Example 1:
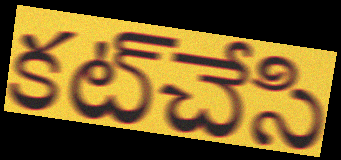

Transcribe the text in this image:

కట్‌చేసి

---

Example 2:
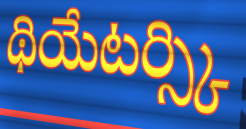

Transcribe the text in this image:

థియేటర్స్కి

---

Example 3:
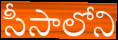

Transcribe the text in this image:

సీసాలోని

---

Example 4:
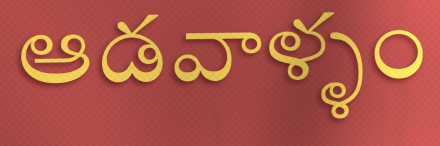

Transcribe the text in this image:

ఆడవాళ్ళం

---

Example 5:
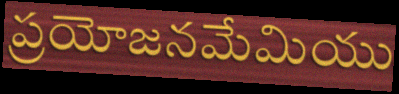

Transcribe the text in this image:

ప్రయోజనమేమియు